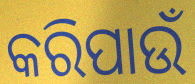
କରିପାଉଁ